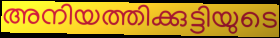
അനിയത്തിക്കുട്ടിയുടെ